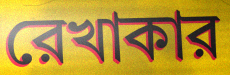
রেখাকার